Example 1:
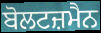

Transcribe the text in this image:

ਬੋਲਟਜ਼ਮੈਨ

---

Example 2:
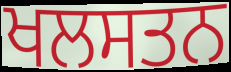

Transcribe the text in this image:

ਖਲਸਤਨ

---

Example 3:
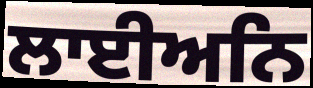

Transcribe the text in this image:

ਲਾਈਅਨਿ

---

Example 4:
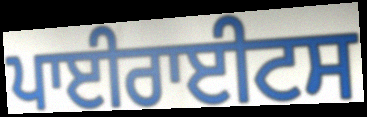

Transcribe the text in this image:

ਪਾਈਰਾਈਟਸ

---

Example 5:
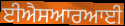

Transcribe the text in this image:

ਈਐਸਆਰਆਈ